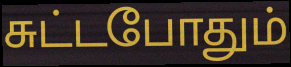
சுட்டபோதும்